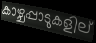
കാഴ്ചപ്പാടുകളില്